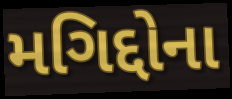
મગિદ્દોના